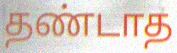
தண்டாத